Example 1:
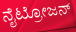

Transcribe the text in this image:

ನೈಟ್ರೋಜನ್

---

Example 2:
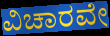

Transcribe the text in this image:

ವಿಚಾರವೇ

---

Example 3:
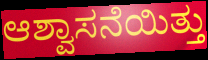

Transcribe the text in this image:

ಆಶ್ವಾಸನೆಯಿತ್ತು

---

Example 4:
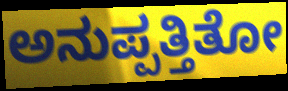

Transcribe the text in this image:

ಅನುಪ್ಪತ್ತಿತೋ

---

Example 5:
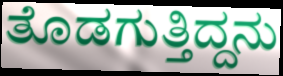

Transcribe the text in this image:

ತೊಡಗುತ್ತಿದ್ದನು